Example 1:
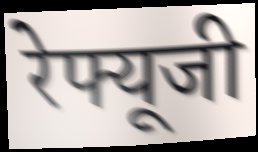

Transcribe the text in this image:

रेफ्यूजी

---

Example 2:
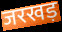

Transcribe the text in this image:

जरखड़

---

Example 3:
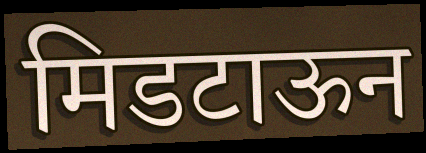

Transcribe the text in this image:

मिडटाऊन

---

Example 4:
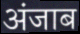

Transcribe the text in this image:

अंजाब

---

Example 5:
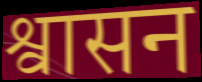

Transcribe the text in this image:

श्वासन